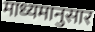
माध्यमानुसार